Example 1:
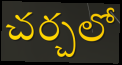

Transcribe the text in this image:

చర్చలో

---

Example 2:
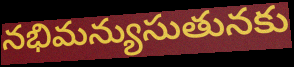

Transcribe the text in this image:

నభిమన్యుసుతునకు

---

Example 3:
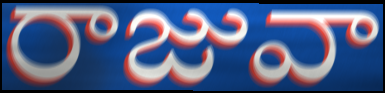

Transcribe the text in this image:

రాజువా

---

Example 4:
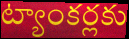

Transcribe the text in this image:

ట్యాంకర్లకు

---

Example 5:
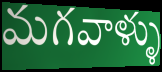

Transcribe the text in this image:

మగవాళ్ళు